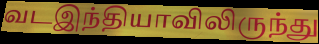
வடஇந்தியாவிலிருந்து